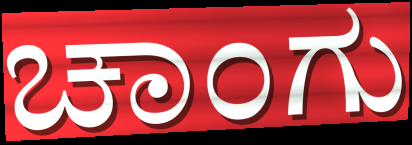
ಚಾಂಗು